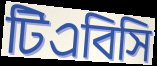
টিএবিসি